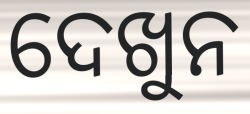
ଦେଖୁନ